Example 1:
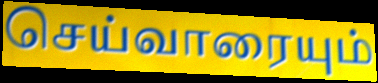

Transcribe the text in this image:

செய்வாரையும்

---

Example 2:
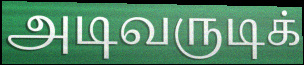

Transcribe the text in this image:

அடிவருடிக்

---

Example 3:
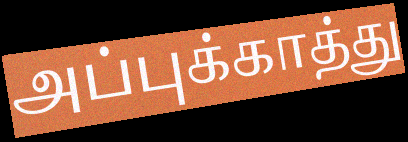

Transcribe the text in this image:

அப்புக்காத்து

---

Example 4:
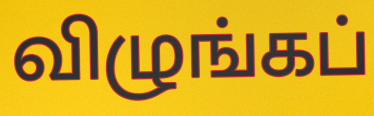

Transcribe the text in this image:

விழுங்கப்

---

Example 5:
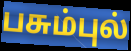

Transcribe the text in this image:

பசும்புல்